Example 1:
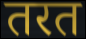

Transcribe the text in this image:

तरत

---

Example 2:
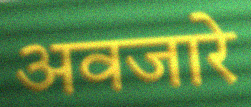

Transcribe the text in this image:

अवजारे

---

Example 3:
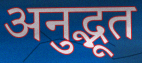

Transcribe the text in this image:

अनुद्भूत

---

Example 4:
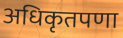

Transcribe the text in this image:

अधिकृतपणा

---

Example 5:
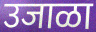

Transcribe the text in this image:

उजाळा